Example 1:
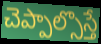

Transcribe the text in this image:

చెప్పాల్సొస్తే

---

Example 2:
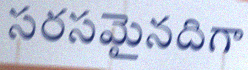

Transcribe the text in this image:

సరసమైనదిగా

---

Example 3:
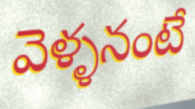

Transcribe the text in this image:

వెళ్ళనంటే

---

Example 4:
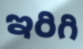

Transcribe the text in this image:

ఇరిగి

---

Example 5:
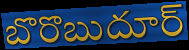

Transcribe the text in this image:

బొరొబుదూర్